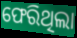
ଫେରିଥିଲା